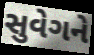
સુવેગને